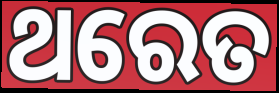
ଥରେତ